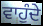
ਵਾਹੁੰਦੇ